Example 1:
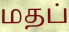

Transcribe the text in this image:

மதப்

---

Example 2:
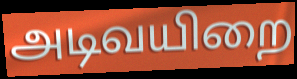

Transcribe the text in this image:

அடிவயிறை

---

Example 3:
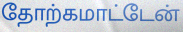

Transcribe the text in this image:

தோற்கமாட்டேன்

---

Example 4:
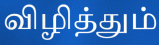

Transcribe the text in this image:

விழித்தும்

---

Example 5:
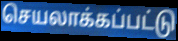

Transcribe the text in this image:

செயலாக்கப்பட்டு